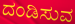
ದಂಡಿಸುವ